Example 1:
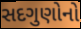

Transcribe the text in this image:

સદગુણોનો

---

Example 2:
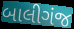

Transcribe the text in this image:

બાલીગંજ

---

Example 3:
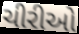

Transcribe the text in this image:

ચીરીઓ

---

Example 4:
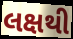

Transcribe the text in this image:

લક્ષથી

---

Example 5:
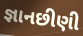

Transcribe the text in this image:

જ્ઞાનછીણી